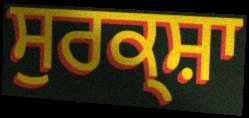
ਸੁਰਕ੍ਸ਼ਾ